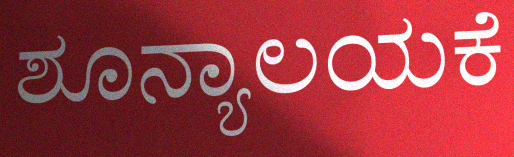
ಶೂನ್ಯಾಲಯಕೆ